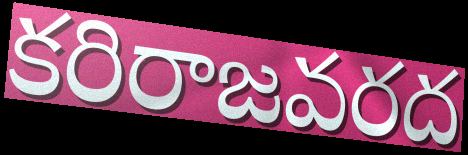
కరిరాజవరద